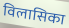
विलासिका